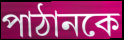
পাঠানকে